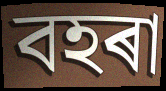
বহৰা